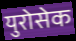
युरोसेक